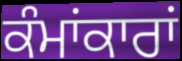
ਕੰਮਾਂਕਾਰਾਂ